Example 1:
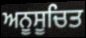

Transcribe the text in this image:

ਅਨੂਸੂਚਿਤ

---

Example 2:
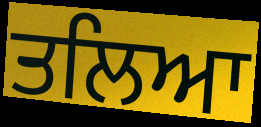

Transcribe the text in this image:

ਤਲਿਆ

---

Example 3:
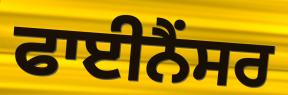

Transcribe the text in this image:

ਫਾਈਨੈਂਸਰ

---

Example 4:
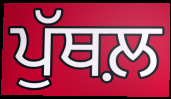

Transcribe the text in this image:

ਪੁੱਥਲ਼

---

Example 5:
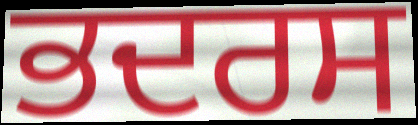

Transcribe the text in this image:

ਭਦਰਸ